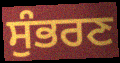
ਸੁੰਭਰਣ